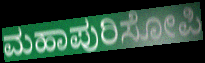
ಮಹಾಪುರಿಸೋಪಿ